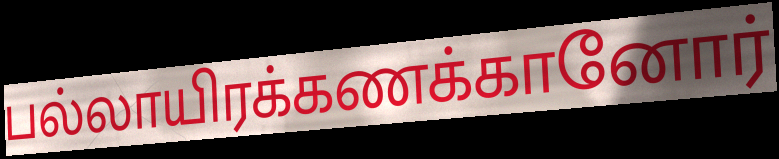
பல்லாயிரக்கணக்கானோர்